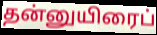
தன்னுயிரைப்